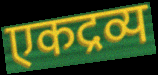
एकद्रव्य